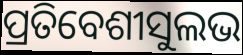
ପ୍ରତିବେଶୀସୁଲଭ